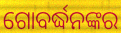
ଗୋବର୍ଦ୍ଧନଙ୍କର